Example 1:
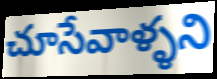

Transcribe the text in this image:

చూసేవాళ్ళని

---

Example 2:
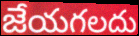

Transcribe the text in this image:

జేయగలదు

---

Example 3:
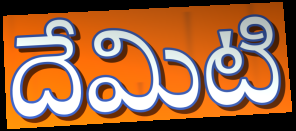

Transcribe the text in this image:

దేమిటి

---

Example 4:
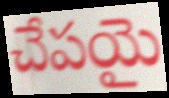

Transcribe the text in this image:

చేపయై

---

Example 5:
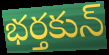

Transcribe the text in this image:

భర్తకున్